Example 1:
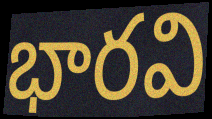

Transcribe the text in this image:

భారవి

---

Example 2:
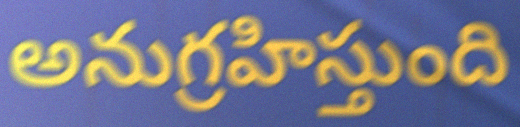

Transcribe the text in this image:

అనుగ్రహిస్తుంది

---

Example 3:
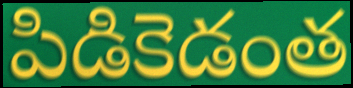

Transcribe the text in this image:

పిడికెడంత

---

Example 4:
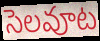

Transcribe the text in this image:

సెలవూట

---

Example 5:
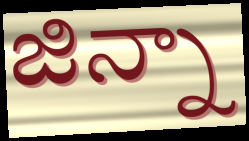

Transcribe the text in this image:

జిన్నా